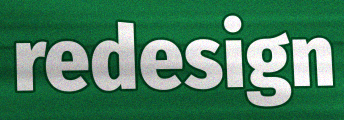
redesign